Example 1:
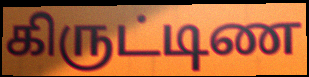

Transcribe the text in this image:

கிருட்டிண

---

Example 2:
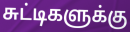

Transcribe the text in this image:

சுட்டிகளுக்கு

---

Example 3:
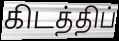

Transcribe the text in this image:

கிடத்திப்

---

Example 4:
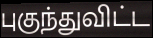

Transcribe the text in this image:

புகுந்துவிட்ட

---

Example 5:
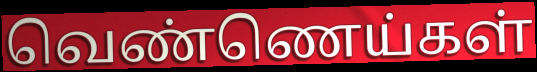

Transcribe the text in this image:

வெண்ணெய்கள்